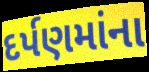
દર્પણમાંના